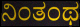
ನಿಂತಂಥ